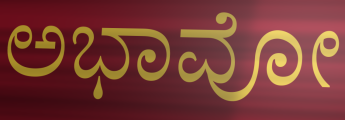
ಅಭಾವೋ